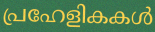
പ്രഹേളികകൾ